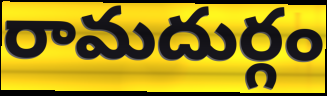
రామదుర్గం